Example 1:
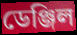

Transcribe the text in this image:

ডেঞ্জিল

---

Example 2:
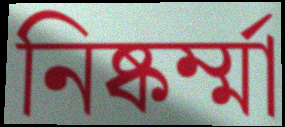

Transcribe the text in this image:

নিষ্কর্ম্মা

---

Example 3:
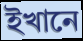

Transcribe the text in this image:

ইখানে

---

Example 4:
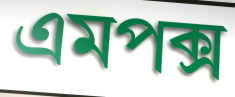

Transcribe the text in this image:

এমপক্স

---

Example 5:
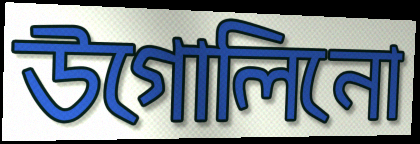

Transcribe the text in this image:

উগোলিনো